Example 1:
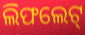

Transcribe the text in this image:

ଲିଫଲେଟ୍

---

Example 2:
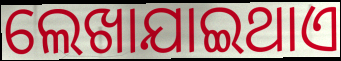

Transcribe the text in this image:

ଲେଖାଯାଇଥାଏ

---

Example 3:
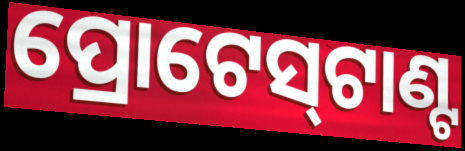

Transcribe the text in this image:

ପ୍ରୋଟେସ୍‌ଟାଣ୍ଟ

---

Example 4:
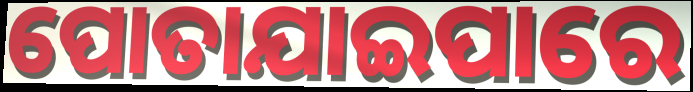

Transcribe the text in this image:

ପୋତାଯାଇପାରେ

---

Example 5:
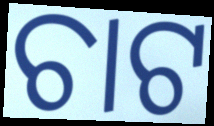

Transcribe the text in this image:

ଚାଟ